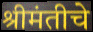
श्रीमंतीचे